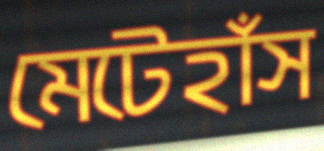
মেটেহাঁস